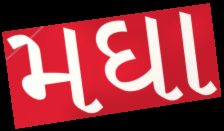
મઘા